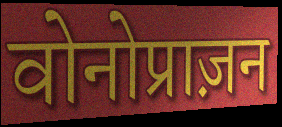
वोनोप्राज़न